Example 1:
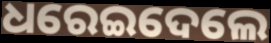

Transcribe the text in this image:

ଧରେଇଦେଲେ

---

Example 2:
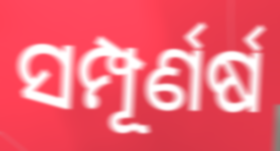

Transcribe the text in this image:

ସମ୍ପୂର୍ଣର୍ଷ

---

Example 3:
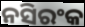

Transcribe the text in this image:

ନସିରଂକ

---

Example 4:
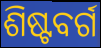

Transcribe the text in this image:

ଶିଷ୍ଟବର୍ଗ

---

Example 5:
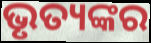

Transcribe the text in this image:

ଭୃତ୍ୟଙ୍କର